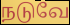
நடுவே